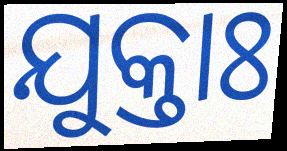
ଯୁକ୍ତାଃ